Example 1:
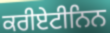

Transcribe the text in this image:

ਕਰੀਏਟੀਨਿਨ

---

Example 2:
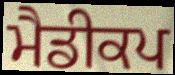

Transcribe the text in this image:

ਮੈਡੀਕਪ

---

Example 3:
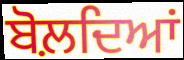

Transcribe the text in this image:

ਬੋਲ਼ਦਿਆਂ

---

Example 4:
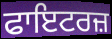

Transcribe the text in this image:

ਫਾਇਟਰਜ਼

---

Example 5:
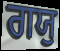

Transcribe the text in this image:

ਗਯੁ